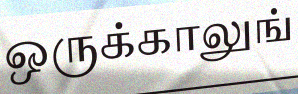
ஒருக்காலுங்